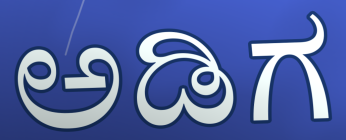
ಅಡಿಗ